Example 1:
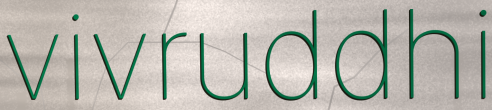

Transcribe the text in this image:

vivruddhi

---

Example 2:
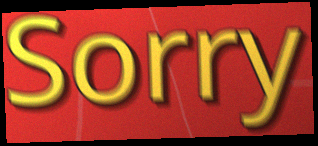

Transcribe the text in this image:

Sorry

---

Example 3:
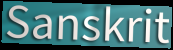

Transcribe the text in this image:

Sanskrit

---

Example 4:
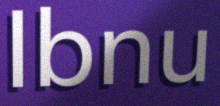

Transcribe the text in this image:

Ibnu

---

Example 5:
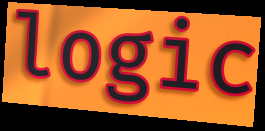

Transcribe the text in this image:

logic